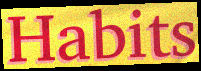
Habits